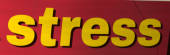
stress